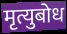
मृत्युबोध